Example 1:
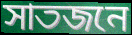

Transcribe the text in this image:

সাতজনে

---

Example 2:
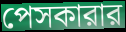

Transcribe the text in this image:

পেসকারার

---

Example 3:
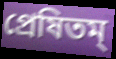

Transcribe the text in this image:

প্রেষিতম্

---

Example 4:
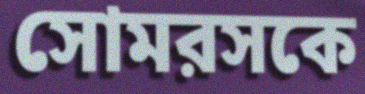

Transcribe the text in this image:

সোমরসকে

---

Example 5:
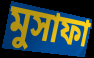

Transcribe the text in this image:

মুসাফা